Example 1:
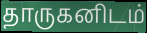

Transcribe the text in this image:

தாருகனிடம்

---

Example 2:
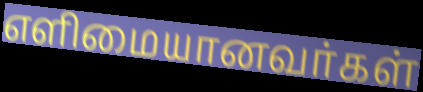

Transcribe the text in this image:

எளிமையானவர்கள்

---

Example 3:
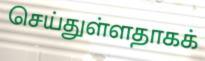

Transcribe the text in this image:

செய்துள்ளதாகக்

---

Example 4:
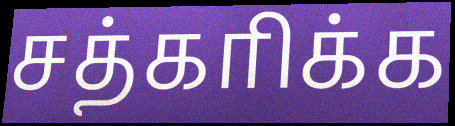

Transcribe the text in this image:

சத்கரிக்க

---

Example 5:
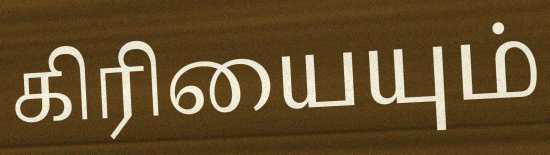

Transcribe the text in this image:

கிரியையும்